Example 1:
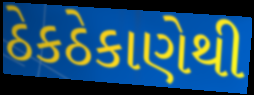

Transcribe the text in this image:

ઠેકઠેકાણેથી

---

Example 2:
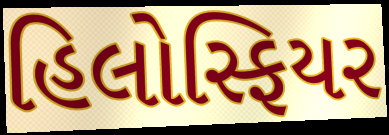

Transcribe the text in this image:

હિલોસ્ફિયર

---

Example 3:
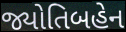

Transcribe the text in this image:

જ્યોતિબહેન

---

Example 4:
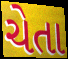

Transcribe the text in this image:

ચેતા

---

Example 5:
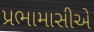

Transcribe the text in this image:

પ્રભામાસીએ